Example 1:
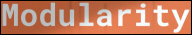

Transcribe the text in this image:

Modularity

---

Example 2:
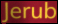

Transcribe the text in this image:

Jerub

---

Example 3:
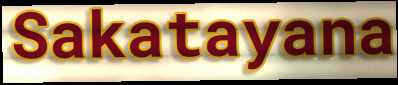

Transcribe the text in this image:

Sakatayana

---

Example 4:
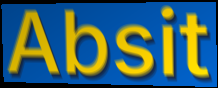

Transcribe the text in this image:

Absit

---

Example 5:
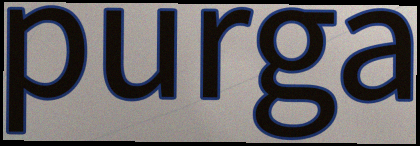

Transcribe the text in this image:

purga